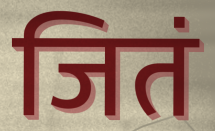
जितं